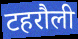
टहरौली